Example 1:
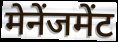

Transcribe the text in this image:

मेनेंजमेंट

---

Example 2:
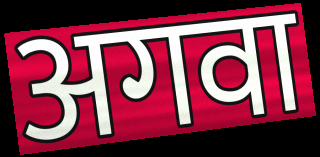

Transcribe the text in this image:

अगवा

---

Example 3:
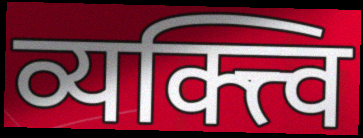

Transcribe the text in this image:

व्यक्त्त्वि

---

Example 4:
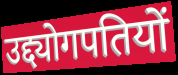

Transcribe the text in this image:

उद्द्योगपतियों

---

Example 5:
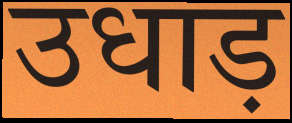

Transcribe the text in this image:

उधाड़